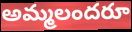
అమ్మలందరూ